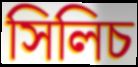
সিলিচ